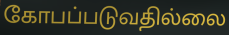
கோபப்படுவதில்லை